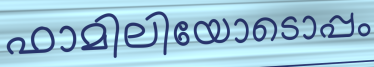
ഫാമിലിയോടൊപ്പം